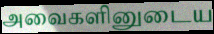
அவைகளினுடைய